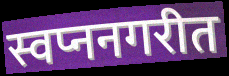
स्वप्ननगरीत